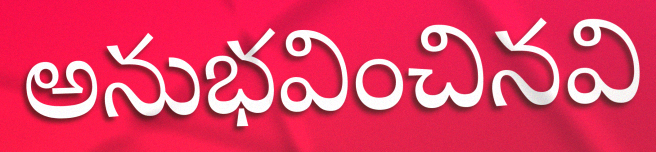
అనుభవించినవి